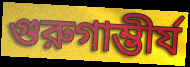
গুরুগাম্ভীর্য